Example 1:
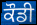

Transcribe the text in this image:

ਕੌਡੀ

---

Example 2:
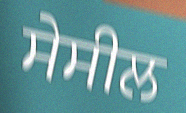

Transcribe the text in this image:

ਸੇਸੀਲ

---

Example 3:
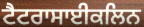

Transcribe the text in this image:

ਟੈਟਰਾਸਾਈਕਲਿਨ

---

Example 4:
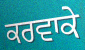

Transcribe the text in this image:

ਕਰਵਾਕੇ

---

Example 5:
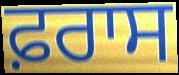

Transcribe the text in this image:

ਫ਼ਰਾਸ